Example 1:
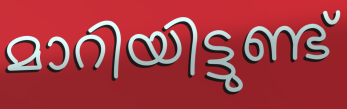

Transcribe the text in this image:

മാറിയിട്ടുണ്ട്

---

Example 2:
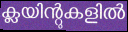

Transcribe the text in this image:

ക്ലയിന്റുകളിൽ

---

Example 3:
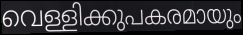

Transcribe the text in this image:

വെള്ളിക്കുപകരമായും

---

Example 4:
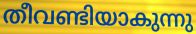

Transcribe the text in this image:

തീവണ്ടിയാകുന്നു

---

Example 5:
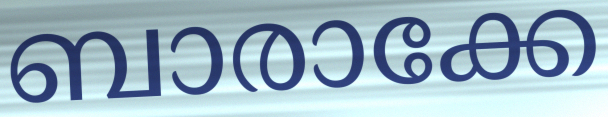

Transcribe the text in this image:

ബാരാക്കേ